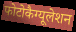
फोटोकैग्यूलेशन